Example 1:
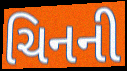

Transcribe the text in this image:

ચિનની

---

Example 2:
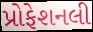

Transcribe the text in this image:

પ્રોફેશનલી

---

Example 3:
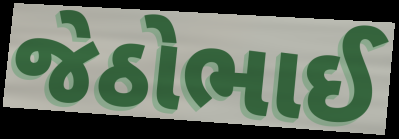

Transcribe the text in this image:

જેઠોભાઈ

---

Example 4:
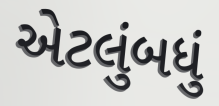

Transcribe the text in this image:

એટલુંબધું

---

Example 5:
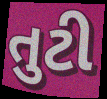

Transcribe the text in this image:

તુટી